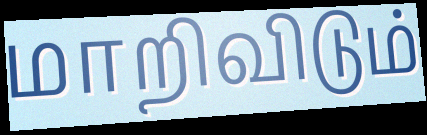
மாறிவிடும்